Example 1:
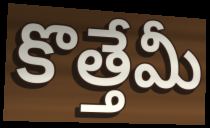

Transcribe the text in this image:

కొత్తేమీ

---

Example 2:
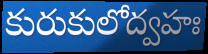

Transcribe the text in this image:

కురుకులోద్వహః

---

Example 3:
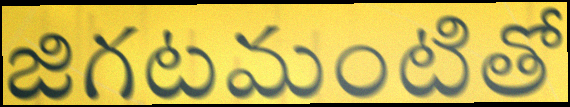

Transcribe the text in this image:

జిగటమంటితో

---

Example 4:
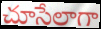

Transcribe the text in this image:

చూసేలాగా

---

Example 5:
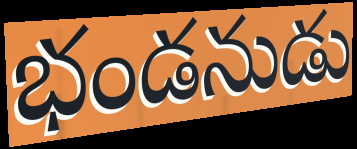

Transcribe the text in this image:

భండనుడు